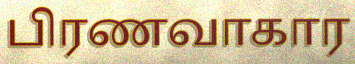
பிரணவாகார